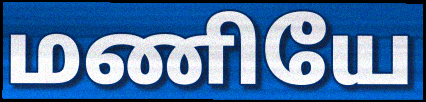
மணியே